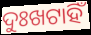
ଦୁଃଖଟାହିଁ